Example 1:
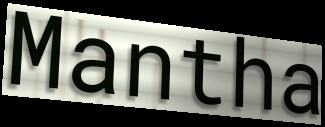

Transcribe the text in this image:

Mantha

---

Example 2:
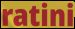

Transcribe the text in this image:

ratini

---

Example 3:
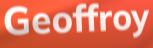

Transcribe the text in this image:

Geoffroy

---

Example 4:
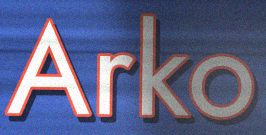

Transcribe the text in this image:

Arko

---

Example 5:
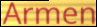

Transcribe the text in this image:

Armen